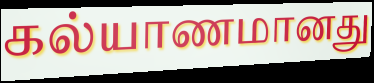
கல்யாணமானது